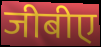
जीबीए